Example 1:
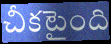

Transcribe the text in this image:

చీకటైంది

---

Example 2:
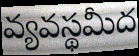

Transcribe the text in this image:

వ్యవస్థమీద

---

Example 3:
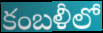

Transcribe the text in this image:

కంబళీలో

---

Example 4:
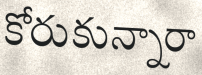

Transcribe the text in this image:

కోరుకున్నారా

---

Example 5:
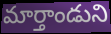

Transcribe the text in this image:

మార్తాండుని